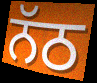
ਨੱਠ